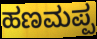
ಹಣಮಪ್ಪ